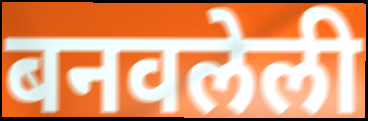
बनवलेली